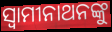
ସ୍ୱାମୀନାଥନଙ୍କୁ